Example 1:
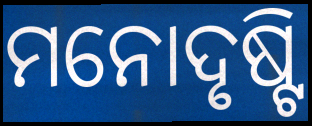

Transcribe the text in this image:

ମନୋଦୃଷ୍ଟି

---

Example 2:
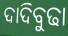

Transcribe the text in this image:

ଦାଦିବୁଢା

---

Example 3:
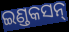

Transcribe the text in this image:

ଇଣ୍ଡକସନ୍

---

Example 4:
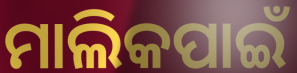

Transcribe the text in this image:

ମାଲିକପାଇଁ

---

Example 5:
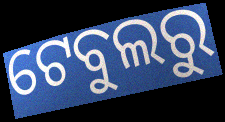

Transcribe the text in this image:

ଟେବୁଲରୁ